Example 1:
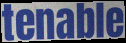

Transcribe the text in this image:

tenable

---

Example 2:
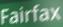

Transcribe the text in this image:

Fairfax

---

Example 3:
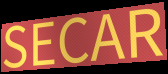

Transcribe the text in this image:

SECAR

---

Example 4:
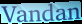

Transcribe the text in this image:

Vandan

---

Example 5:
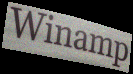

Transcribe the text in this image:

Winamp